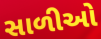
સાળીઓ